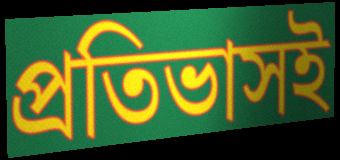
প্রতিভাসই